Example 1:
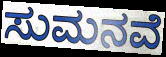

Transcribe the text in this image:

ಸುಮನವೆ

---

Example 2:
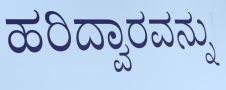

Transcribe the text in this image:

ಹರಿದ್ವಾರವನ್ನು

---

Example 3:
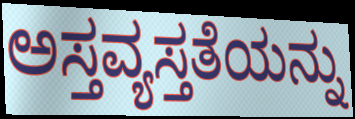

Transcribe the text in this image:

ಅಸ್ತವ್ಯಸ್ತತೆಯನ್ನು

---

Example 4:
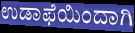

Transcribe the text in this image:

ಉಡಾಫೆಯಿಂದಾಗಿ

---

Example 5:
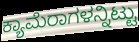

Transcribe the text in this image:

ಕ್ಯಾಮೆರಾಗಳನ್ನಿಟ್ಟು